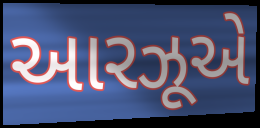
આરઝૂએ